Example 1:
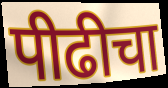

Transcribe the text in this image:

पीढीचा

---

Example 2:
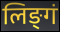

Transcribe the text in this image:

लिङ्गं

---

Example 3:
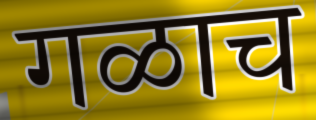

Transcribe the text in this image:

गळाच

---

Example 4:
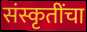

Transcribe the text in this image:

संस्कृतींचा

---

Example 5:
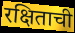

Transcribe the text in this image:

रक्षिताची